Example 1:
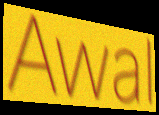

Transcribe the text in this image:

Awal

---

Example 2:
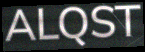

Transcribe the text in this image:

ALQST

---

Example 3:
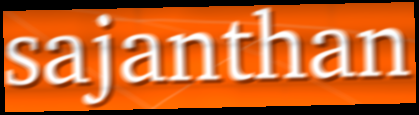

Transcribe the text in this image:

sajanthan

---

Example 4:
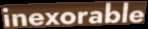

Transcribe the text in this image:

inexorable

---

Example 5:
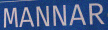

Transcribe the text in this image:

MANNAR